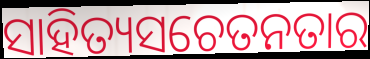
ସାହିତ୍ୟସଚେତନତାର